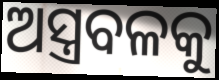
ଅସ୍ତ୍ରବଳକୁ